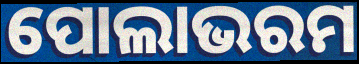
ପୋଲାଭରମ